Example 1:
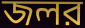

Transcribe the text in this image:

জলর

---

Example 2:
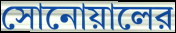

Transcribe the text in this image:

সোনোয়ালের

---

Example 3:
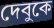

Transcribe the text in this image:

দেবুকে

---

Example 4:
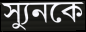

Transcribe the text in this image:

স্যুনকে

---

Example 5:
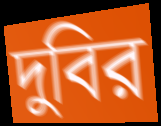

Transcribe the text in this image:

দুবির